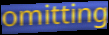
omitting